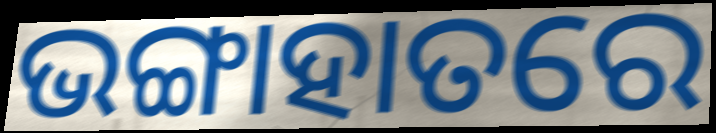
ଭଙ୍ଗାହାତରେ